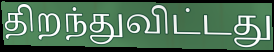
திறந்துவிட்டது